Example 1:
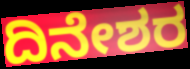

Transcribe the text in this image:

ದಿನೇಶರ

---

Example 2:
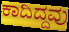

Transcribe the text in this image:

ಕಾದಿದ್ದವು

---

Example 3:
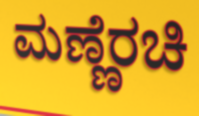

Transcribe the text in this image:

ಮಣ್ಣೆರಚಿ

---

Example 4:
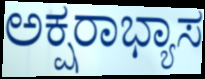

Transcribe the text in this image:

ಅಕ್ಷರಾಭ್ಯಾಸ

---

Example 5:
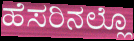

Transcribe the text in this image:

ಹೆಸರಿನಲ್ಲೊ